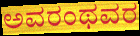
ಅವರಂಥವರ